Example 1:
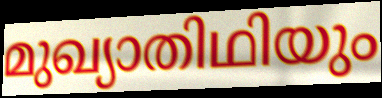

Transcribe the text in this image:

മുഖ്യാതിഥിയും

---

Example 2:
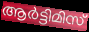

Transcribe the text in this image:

ആർട്ടിമിസ്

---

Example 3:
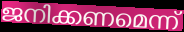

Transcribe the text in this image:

ജനിക്കണമെന്ന്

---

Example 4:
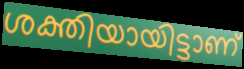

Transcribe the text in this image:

ശക്തിയായിട്ടാണ്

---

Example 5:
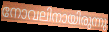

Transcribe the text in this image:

നോവലിനായിരുന്നു